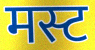
मस्‍ट